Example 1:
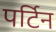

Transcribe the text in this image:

पर्टिन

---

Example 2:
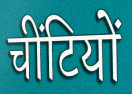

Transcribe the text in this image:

चींटियों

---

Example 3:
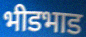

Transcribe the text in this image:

भीडभाड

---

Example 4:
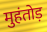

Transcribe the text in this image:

मुहंतोड़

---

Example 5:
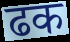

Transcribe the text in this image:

ढक